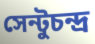
সেন্টুচন্দ্র